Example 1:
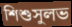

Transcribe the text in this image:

শিশুসুলভ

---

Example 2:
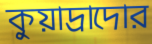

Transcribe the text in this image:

কুয়াদ্রাদোর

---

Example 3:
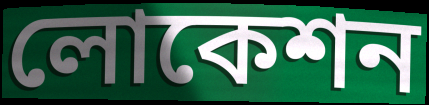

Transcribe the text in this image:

লোকেশন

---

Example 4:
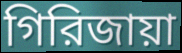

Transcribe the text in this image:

গিরিজায়া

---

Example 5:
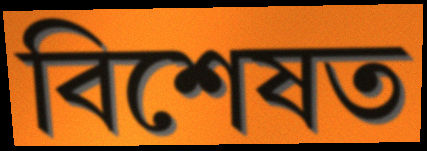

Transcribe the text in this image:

বিশেষত